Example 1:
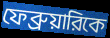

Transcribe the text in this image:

ফেব্রুয়ারিকে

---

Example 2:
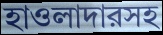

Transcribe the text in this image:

হাওলাদারসহ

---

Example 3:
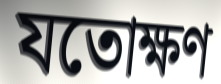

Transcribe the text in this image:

যতোক্ষণ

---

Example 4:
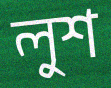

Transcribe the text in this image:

লুশ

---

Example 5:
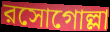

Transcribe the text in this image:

রসোগোল্লা